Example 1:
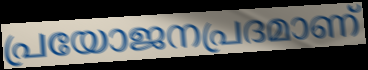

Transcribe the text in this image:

പ്രയോജനപ്രദമാണ്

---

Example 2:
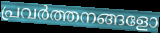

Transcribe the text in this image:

പ്രവർത്തനങ്ങളോ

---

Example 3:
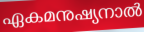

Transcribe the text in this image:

ഏകമനുഷ്യനാൽ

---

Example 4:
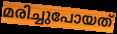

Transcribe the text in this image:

മരിച്ചുപോയത്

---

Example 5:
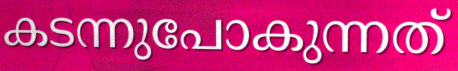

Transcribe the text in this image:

കടന്നുപോകുന്നത്